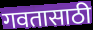
गवतासाठी